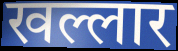
खल्लार